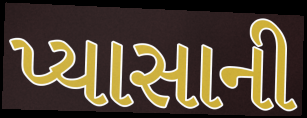
પ્યાસાની